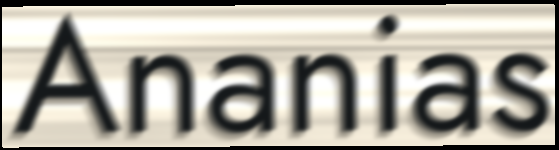
Ananias